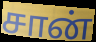
சான்